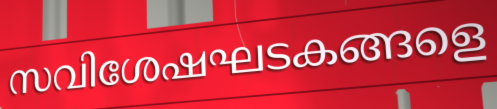
സവിശേഷഘടകങ്ങളെ